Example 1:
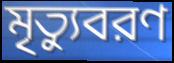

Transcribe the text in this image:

মৃত্যুবরণ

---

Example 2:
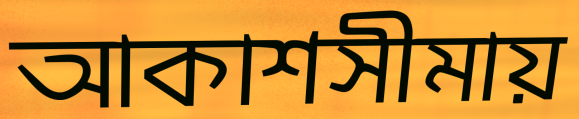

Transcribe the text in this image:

আকাশসীমায়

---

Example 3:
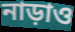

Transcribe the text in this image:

নাড়াও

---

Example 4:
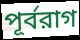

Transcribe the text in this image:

পূর্বরাগ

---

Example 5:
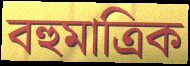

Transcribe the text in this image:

বহুমাত্রিক